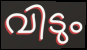
വിടും